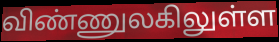
விண்ணுலகிலுள்ள